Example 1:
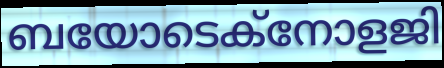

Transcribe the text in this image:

ബയോടെക്നോളജി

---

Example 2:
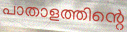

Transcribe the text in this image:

പാതാളത്തിന്റെ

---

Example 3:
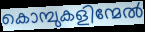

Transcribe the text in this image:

കൊമ്പുകളിന്മേൽ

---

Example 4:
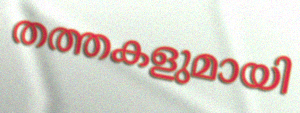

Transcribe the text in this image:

തത്തകളുമായി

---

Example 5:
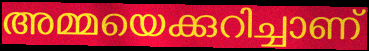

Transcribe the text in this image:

അമ്മയെക്കുറിച്ചാണ്